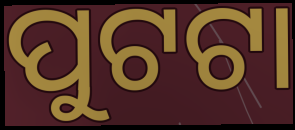
ପୁଟଟା